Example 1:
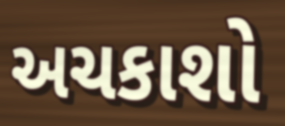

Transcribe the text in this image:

અચકાશો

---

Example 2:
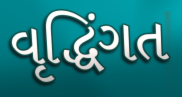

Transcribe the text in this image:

વૃદ્ધિંગત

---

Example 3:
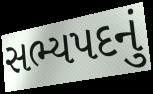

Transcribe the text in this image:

સભ્યપદનું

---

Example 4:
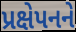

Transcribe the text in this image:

પ્રક્ષેપનને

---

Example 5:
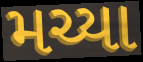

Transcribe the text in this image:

મચ્યા